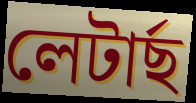
লেটাৰ্ছ